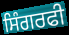
ਸਿੰਗਰਫੀ